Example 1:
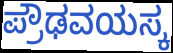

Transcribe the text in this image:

ಪ್ರೌಢವಯಸ್ಕ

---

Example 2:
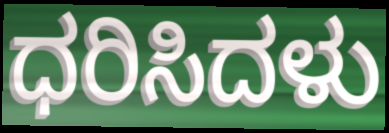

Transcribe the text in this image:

ಧರಿಸಿದಳು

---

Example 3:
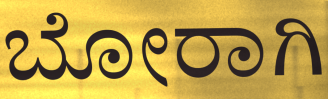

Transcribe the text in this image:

ಬೋರಾಗಿ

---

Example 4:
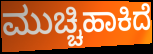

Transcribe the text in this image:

ಮುಚ್ಚಿಹಾಕಿದೆ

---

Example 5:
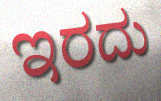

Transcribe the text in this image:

ಇರದು